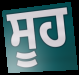
ਸੂਹ